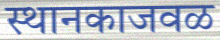
स्थानकाजवळ